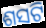
ଶସଟି